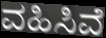
ವಹಿಸಿವೆ